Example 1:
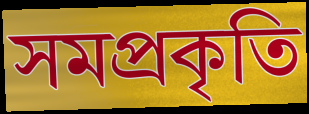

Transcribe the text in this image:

সমপ্রকৃতি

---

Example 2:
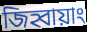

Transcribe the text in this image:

জিহ্বায়াং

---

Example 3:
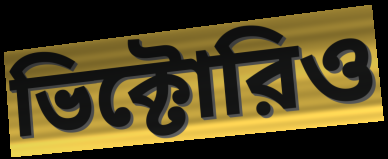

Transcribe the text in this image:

ভিক্টোরিও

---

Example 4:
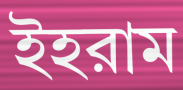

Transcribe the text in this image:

ইহরাম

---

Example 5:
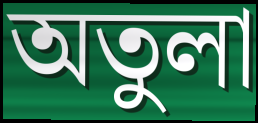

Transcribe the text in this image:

অতুলা